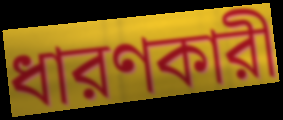
ধারণকারী